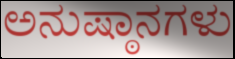
ಅನುಷ್ಠಾನಗಳು